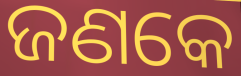
ଜଣକେ